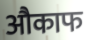
औकाफ